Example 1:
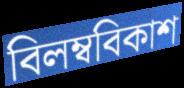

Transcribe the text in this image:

বিলম্ববিকাশ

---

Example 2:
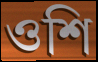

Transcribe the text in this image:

ওশি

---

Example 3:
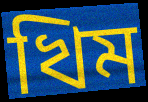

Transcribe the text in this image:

খিম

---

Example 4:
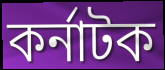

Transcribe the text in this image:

কর্নাটক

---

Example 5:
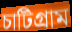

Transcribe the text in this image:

চাটিগ্রাম